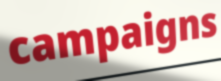
campaigns